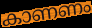
കാണണം